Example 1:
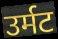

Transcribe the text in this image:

उर्मट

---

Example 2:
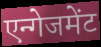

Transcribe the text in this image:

एन्गेजमेंट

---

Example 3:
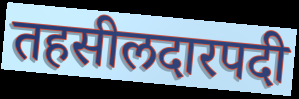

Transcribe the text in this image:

तहसीलदारपदी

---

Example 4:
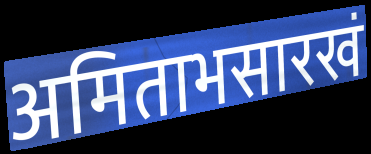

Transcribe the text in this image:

अमिताभसारखं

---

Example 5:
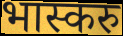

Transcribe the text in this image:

भास्करु